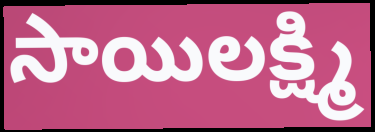
సాయిలక్ష్మి